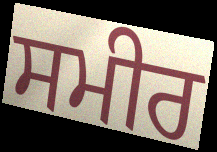
ਸਮੀਰ